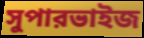
সুপারভাইজ